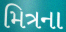
મિત્રના